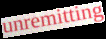
unremitting